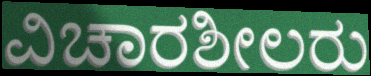
ವಿಚಾರಶೀಲರು